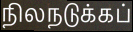
நிலநடுக்கப்